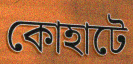
কোহাটে